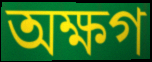
অক্ষগ